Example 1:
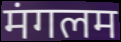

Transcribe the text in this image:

मंगलम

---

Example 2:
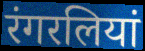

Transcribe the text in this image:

रंगरलियां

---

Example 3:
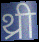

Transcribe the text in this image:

थ्री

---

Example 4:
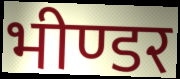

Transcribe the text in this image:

भीण्डर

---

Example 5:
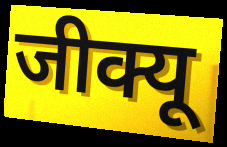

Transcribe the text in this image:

जीक्यू